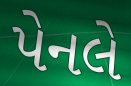
પેનલે